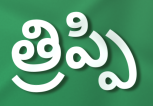
త్రిప్పి